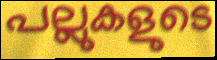
പല്ലുകളുടെ